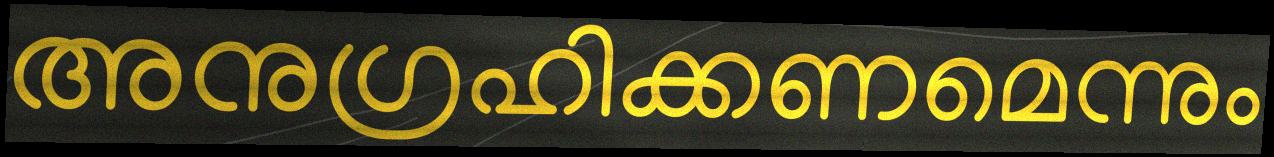
അനുഗ്രഹിക്കണമെന്നും